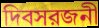
দিবসরজনী